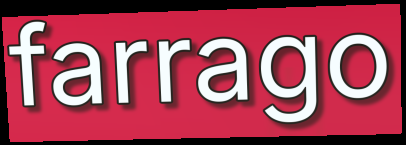
farrago